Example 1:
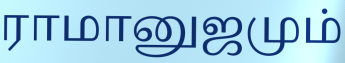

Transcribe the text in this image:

ராமானுஜமும்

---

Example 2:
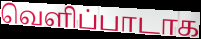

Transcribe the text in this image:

வெளிப்பாடாக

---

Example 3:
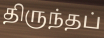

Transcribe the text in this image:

திருந்தப்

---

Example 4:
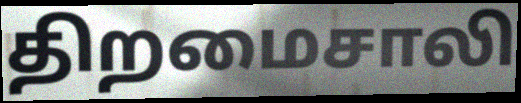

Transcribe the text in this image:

திறமைசாலி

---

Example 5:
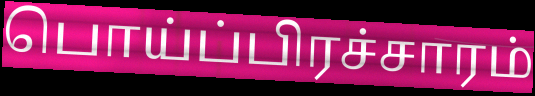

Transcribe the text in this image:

பொய்ப்பிரச்சாரம்